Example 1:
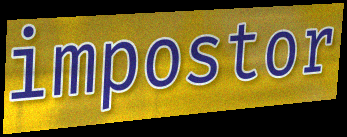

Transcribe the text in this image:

impostor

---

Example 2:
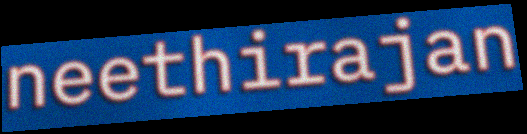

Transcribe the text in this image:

neethirajan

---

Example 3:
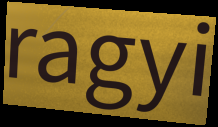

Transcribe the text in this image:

ragyi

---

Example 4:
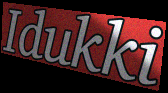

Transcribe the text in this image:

Idukki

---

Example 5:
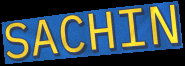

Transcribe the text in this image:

SACHIN